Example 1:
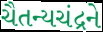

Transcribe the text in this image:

ચૈતન્યચંદ્રને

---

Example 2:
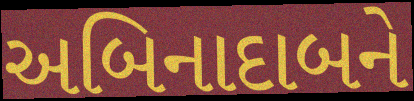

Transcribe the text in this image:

અબિનાદાબને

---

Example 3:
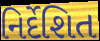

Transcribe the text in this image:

નિર્દેશિત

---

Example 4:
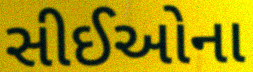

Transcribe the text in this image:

સીઈઓના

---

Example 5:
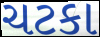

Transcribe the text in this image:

ચટકા